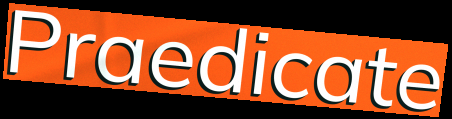
Praedicate